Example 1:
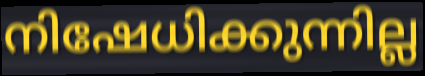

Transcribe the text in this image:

നിഷേധിക്കുന്നില്ല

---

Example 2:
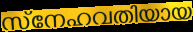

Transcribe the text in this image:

സ്‌നേഹവതിയായ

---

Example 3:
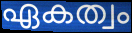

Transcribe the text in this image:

ഏകത്വം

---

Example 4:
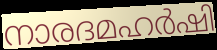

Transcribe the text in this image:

നാരദമഹർഷി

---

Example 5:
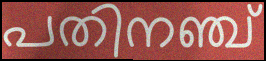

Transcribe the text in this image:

പതിനഞ്ച്